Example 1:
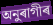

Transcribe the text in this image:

অনুৰাগীৰ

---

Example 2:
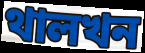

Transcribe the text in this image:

থালখন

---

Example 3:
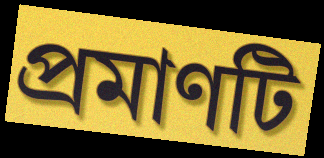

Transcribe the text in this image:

প্ৰমাণটি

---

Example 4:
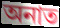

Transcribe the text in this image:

অনাত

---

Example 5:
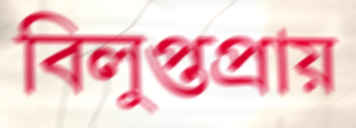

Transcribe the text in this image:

বিলুপ্তপ্ৰায়